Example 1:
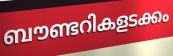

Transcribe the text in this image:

ബൗണ്ടറികളടക്കം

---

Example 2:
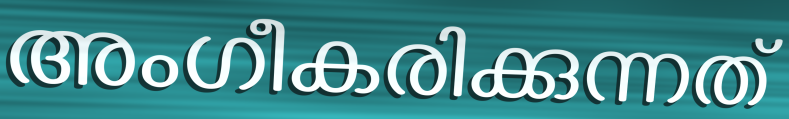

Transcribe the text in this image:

അംഗീകരിക്കുന്നത്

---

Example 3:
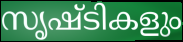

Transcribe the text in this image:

സൃഷ്ടികളും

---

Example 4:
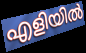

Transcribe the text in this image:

എളിയിൽ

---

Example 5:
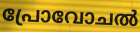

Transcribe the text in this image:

പ്രോവോചൽ